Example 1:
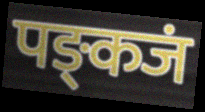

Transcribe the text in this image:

पङ्कजं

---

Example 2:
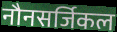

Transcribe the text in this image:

नौनसर्जिकल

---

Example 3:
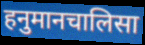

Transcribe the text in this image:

हनुमानचालिसा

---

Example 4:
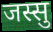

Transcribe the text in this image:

जस्सु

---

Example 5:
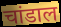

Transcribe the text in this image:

चांडाल